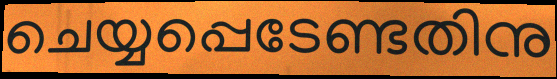
ചെയ്യപ്പെടേണ്ടതിനു